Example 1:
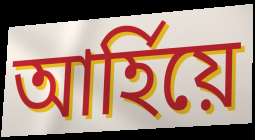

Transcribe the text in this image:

আৰ্হিয়ে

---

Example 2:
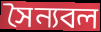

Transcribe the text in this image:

সৈন্যবল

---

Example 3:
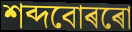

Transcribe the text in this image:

শব্দবোৰৰো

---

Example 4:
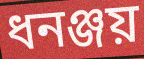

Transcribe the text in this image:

ধনঞ্জয়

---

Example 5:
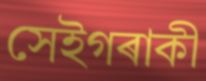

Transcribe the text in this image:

সেইগৰাকী